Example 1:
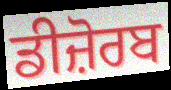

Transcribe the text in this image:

ਡੀਜ਼ੋਰਬ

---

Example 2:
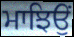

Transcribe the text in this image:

ਮਾਝਿਉਂ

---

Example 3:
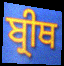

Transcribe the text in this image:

ਬ੍ਰੀਥ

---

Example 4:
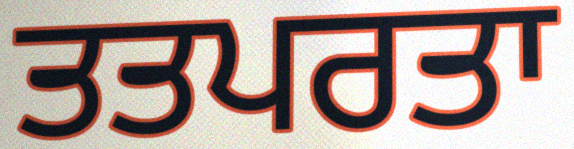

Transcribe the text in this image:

ਤਤਪਰਤਾ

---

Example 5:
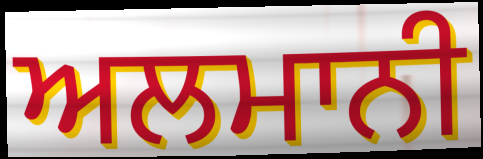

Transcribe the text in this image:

ਅਲਮਾਨੀ